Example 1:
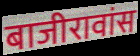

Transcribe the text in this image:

बाजीरावांस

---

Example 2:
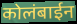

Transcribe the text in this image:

कोलंबाईन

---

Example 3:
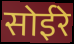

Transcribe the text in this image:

सोईरे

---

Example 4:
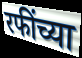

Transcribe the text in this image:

रफींच्या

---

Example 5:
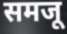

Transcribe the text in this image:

समजू